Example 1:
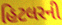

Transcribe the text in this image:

હિટલરની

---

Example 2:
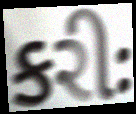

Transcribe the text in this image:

કરીઃ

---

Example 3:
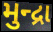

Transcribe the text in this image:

મુન્દ્રા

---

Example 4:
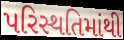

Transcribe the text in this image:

પરિસ્થતિમાંથી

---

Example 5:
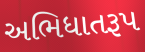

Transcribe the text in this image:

અભિધાતરૂપ